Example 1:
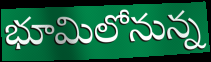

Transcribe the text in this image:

భూమిలోనున్న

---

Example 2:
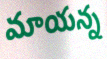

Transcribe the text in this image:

మాయన్న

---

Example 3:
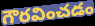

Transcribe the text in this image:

గౌరవించడం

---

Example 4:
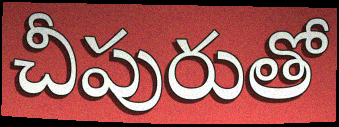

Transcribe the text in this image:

చీపురుతో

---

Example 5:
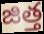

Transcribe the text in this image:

జిత్త